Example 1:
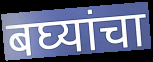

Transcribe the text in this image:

बघ्यांचा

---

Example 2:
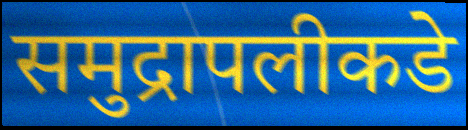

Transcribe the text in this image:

समुद्रापलीकडे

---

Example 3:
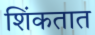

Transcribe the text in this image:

शिंकतात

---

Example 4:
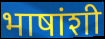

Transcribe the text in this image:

भाषांशी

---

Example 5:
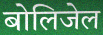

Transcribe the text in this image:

बोलिजेल